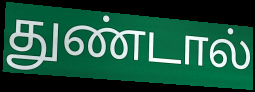
துண்டால்